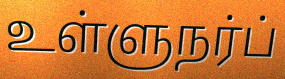
உள்ளுநர்ப்